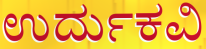
ಉರ್ದುಕವಿ